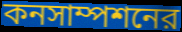
কনসাম্পশনের